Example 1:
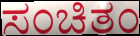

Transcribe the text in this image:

ಸಂಚಿತಂ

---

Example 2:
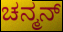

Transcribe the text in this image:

ಚನ್ಮನ್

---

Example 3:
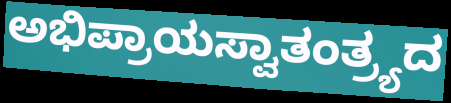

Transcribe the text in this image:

ಅಭಿಪ್ರಾಯಸ್ವಾತಂತ್ರ್ಯದ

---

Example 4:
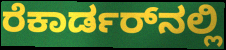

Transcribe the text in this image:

ರೆಕಾರ್ಡರ್‌ನಲ್ಲಿ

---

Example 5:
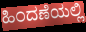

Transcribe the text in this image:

ಹಿಂದಣೆಯಲ್ಲಿ